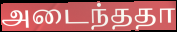
அடைந்ததா